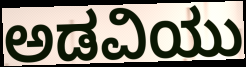
ಅಡವಿಯು